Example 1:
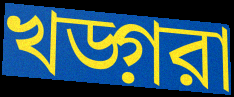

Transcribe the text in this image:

খড়্গরা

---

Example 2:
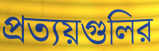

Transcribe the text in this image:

প্রত্যয়গুলির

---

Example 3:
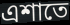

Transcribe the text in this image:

এশাতে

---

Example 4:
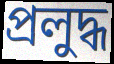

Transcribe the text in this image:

প্রলুদ্ধ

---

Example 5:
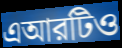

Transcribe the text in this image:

এআরটিও